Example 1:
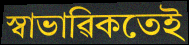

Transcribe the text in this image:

স্বাভাৱিকতেই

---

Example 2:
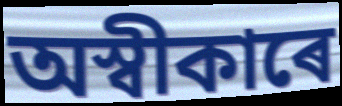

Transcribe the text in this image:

অস্বীকাৰে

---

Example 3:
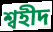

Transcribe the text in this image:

শ্বহীদ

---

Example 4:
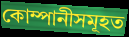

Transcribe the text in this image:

কোম্পানীসমূহত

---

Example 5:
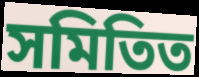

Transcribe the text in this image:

সমিতিত